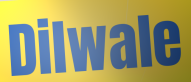
Dilwale